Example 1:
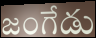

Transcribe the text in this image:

జంగేడు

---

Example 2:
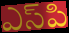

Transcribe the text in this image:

ఎస్‌పి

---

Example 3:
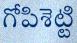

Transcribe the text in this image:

గోపిశెట్టి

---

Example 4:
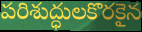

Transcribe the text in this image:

పరిశుద్ధులకొరకైన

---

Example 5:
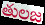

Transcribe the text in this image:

తులజ